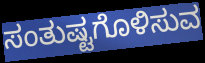
ಸಂತುಷ್ಟಗೊಳಿಸುವ